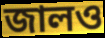
জালও